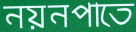
নয়নপাতে